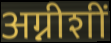
अग्नीशीं